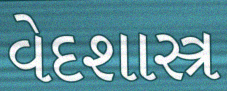
વેદશાસ્ત્ર